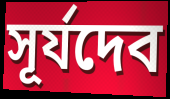
সূর্যদেব